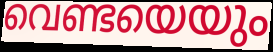
വെണ്ടയെയും